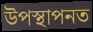
উপস্থাপনত